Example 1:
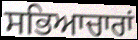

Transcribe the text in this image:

ਸਭਿਆਚਾਰਾਂ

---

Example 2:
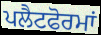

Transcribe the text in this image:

ਪਲੈਟਫੋਰਮਾਂ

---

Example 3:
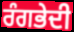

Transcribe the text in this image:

ਰੰਗਭੇਦੀ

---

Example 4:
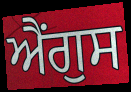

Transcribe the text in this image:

ਐਂਗੁਸ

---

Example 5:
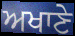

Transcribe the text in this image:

ਅਖਾਣੇ